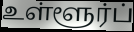
உள்ளூர்ப்